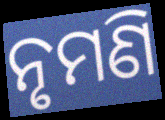
ନୃମଣି